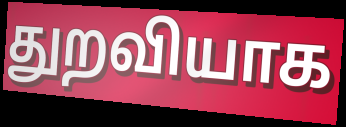
துறவியாக